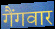
गैंगवार